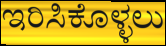
ಇರಿಸಿಕೊಳ್ಳಲು